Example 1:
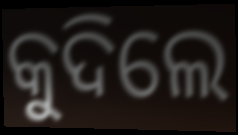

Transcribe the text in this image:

କୁଦିଲେ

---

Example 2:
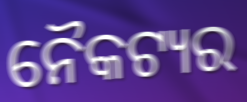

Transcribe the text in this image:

ନୈକଟ୍ୟର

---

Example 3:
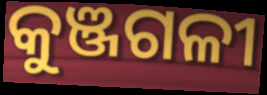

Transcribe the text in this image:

କୁଞ୍ଜଗଳୀ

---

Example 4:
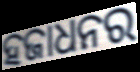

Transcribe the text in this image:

ହଜାଧନର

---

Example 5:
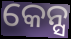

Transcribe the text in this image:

କେନ୍ସ